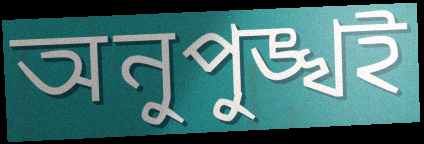
অনুপুঙ্খই